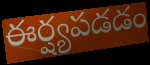
ఈర్ష్యపడడం